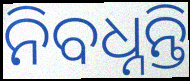
ନିବଧ୍ନନ୍ତି